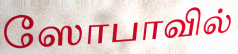
ஸோபாவில்